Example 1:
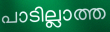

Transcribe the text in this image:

പാടില്ലാത്ത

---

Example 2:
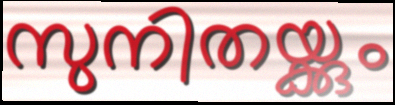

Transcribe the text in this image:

സുനിതയ്ക്കും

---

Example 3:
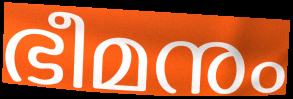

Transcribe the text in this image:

ഭീമനും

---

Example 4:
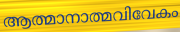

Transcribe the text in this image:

ആത്മാനാത്മവിവേകം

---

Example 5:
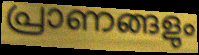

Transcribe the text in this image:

പ്രാണങ്ങളും